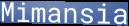
Mimansia